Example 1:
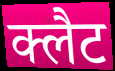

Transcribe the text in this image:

क्लैट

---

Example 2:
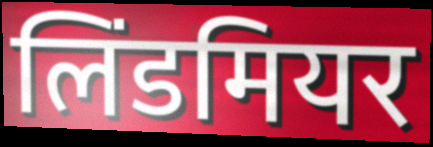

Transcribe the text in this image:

लिंडमियर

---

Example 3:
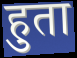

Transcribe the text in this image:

हुता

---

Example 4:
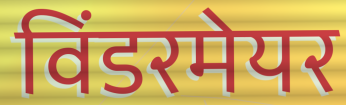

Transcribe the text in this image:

विंडरमेयर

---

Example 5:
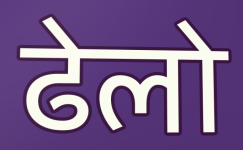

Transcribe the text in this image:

ढेलो